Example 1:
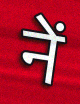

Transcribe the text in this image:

नें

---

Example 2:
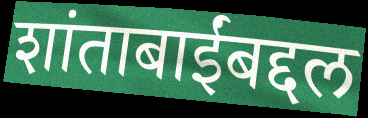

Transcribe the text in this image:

शांताबाईंबद्दल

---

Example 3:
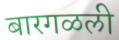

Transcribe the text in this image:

बारगळली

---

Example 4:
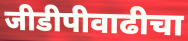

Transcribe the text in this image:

जीडीपीवाढीचा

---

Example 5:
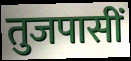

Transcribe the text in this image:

तुजपासीं